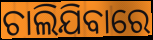
ଚାଲିଯିବାରେ